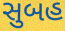
સુબહ